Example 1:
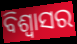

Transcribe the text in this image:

ବିଶ୍ୱାସର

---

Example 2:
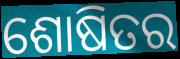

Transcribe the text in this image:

ଶୋଷିତର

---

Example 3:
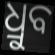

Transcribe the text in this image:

ଧ୍ରୁବ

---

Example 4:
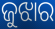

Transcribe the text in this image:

ଜୁଝାର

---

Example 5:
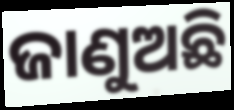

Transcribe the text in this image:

ଜାଣୁଅଛି